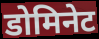
डोमिनेट